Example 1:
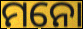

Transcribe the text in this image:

ମନୋ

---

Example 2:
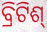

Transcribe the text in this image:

ବ୍ରିଟିଶ୍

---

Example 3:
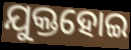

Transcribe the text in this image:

ଯୁକ୍ତହୋଇ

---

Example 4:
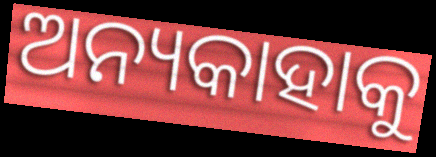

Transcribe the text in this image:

ଅନ୍ୟକାହାକୁ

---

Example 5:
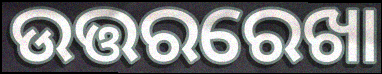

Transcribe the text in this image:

ଉତ୍ତରରେଖା